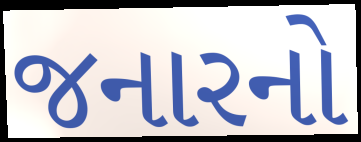
જનારનો